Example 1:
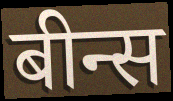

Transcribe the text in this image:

बीन्स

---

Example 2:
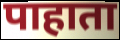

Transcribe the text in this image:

पाहाता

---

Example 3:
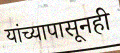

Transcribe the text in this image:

यांच्यापासूनही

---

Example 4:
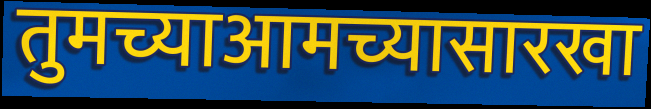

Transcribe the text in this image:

तुमच्याआमच्यासारखा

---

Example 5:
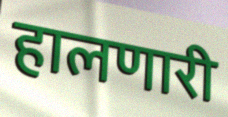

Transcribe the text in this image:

हालणारी